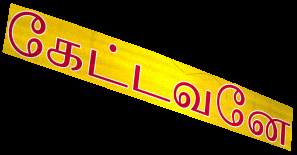
கேட்டவனே